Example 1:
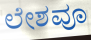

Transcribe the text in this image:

ಲೇಶವೂ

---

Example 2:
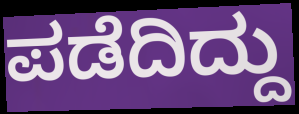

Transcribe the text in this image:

ಪಡೆದಿದ್ದು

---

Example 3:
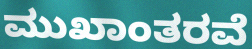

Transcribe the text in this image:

ಮುಖಾಂತರವೆ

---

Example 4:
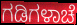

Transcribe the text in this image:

ಗಡಿಗಳಾಚೆ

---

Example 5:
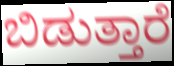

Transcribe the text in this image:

ಬಿಡುತ್ತಾರೆ